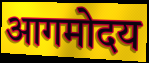
आगमोदय